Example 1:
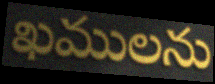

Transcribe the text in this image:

ఖములను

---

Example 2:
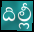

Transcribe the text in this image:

దిల్లీ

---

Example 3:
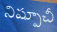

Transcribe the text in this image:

నిష్పూచీ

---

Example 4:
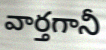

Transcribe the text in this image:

వార్తగానీ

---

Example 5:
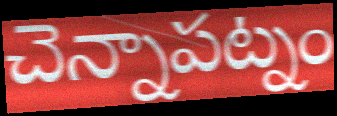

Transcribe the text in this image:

చెన్నాపట్నం